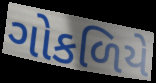
ગોકળિયે